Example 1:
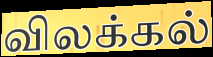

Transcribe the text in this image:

விலக்கல்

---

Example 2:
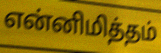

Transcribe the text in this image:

என்னிமித்தம்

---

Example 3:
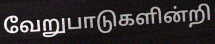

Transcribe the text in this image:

வேறுபாடுகளின்றி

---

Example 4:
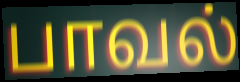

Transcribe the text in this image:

பாவல்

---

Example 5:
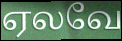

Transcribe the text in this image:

ஏலவே